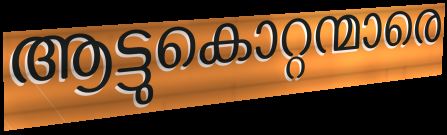
ആട്ടുകൊറ്റന്മാരെ